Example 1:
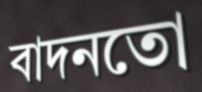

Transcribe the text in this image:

বাদনতো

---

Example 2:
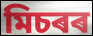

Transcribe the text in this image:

মিচৰৰ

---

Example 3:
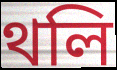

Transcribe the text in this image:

থলি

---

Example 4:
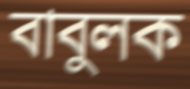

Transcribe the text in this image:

বাবুলক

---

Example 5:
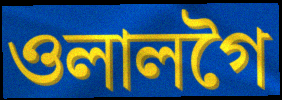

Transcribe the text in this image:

ওলালগৈ